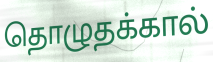
தொழுதக்கால்